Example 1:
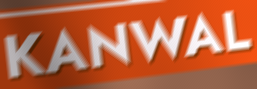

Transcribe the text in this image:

KANWAL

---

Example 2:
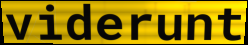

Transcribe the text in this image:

viderunt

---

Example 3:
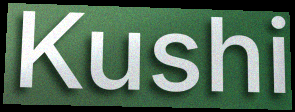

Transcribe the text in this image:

Kushi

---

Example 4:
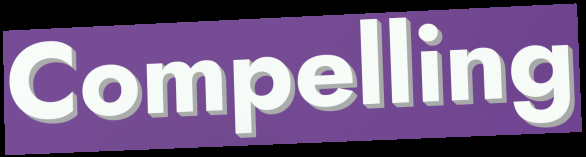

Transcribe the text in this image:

Compelling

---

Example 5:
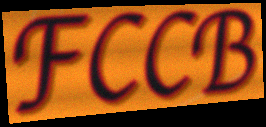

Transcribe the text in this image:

FCCB